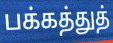
பக்கத்துத்